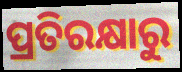
ପ୍ରତିରକ୍ଷାରୁ